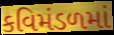
કવિમંડળમાં